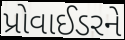
પ્રોવાઈડરને